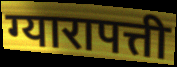
ग्यारापत्ती